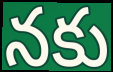
నకు